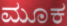
ಮೂಕ